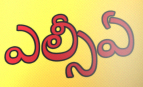
ఎల్సీఏ